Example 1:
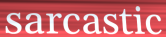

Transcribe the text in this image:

sarcastic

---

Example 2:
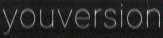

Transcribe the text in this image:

youversion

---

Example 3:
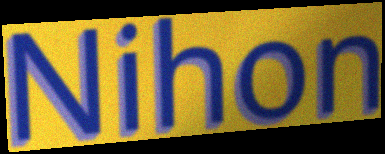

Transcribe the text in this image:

Nihon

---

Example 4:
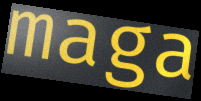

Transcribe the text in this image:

maga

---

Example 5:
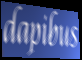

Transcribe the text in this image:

dapibus